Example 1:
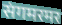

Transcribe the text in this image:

संगमरमर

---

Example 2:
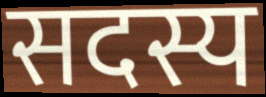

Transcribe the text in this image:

सदस्‍य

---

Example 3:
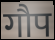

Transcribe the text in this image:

गौप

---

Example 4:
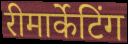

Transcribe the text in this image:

रीमार्केटिंग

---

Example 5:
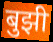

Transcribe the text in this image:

बुझी